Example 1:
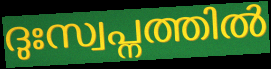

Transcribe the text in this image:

ദുഃസ്വപ്നത്തിൽ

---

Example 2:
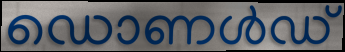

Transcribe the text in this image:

ഡൊണൾഡ്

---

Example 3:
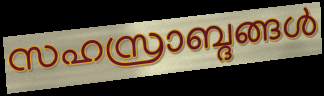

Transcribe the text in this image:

സഹസ്രാബ്ദങ്ങൾ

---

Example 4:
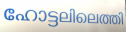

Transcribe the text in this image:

ഹോട്ടലിലെത്തി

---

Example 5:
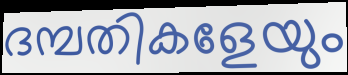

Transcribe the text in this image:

ദമ്പതികളേയും